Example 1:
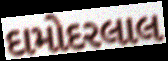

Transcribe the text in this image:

દામોદરલાલ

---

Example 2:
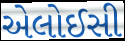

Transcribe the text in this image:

એલોઈસી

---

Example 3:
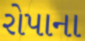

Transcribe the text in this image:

રોપાના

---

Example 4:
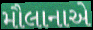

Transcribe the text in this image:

મૌલાનાએ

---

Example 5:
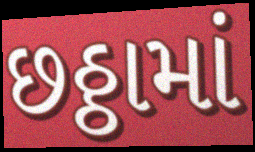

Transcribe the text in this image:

છઠ્ઠામાં